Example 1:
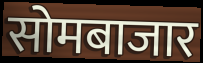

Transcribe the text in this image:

सोमबाजार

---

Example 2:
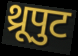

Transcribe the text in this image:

थ्रूपुट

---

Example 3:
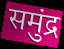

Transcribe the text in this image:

समुंद्र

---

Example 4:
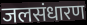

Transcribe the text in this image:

जलसंधारण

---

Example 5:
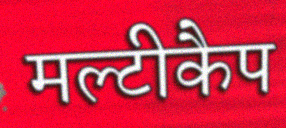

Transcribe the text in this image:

मल्टीकैप